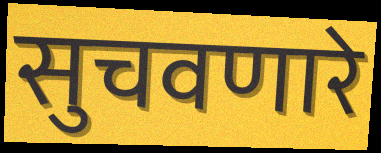
सुचवणारे